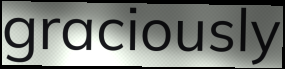
graciously